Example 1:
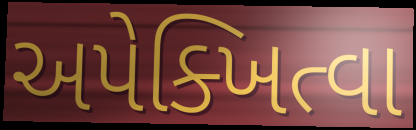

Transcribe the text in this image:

અપેક્ખિત્વા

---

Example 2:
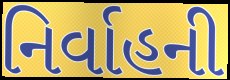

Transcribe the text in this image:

નિર્વાહની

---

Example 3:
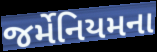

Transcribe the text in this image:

જર્મેનિયમના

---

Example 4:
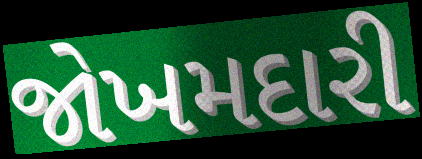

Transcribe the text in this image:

જોખમદારી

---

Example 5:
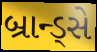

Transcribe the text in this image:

બ્રાન્ડ્સે